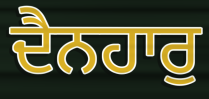
ਦੈਨਹਾਰੁ